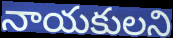
నాయకులని